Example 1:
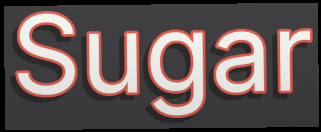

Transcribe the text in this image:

Sugar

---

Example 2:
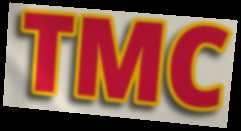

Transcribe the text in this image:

TMC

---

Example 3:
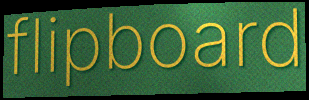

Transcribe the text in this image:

flipboard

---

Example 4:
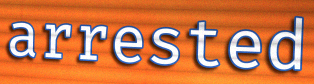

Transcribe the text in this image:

arrested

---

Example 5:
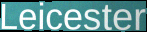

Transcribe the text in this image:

Leicester